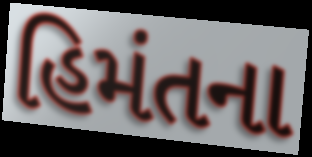
હિમંતના